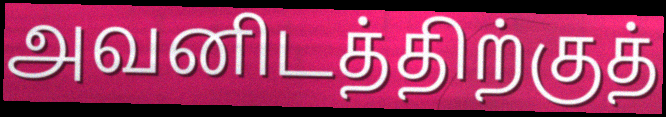
அவனிடத்திற்குத்